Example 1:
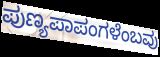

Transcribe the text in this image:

ಪುಣ್ಯಪಾಪಂಗಳೆಂಬವು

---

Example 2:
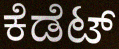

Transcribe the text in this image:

ಕೆಡೆಟ್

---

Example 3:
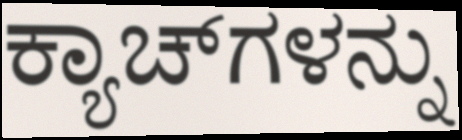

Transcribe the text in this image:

ಕ್ಯಾಚ್‌ಗಳನ್ನು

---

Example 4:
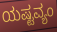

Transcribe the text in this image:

ಯಷ್ಟವ್ಯಂ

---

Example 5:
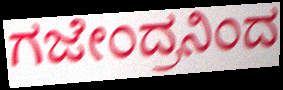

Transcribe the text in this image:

ಗಜೇಂದ್ರನಿಂದ